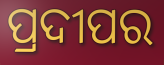
ପ୍ରଦୀପର